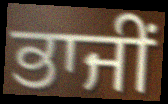
ਭਾਜੀਂ